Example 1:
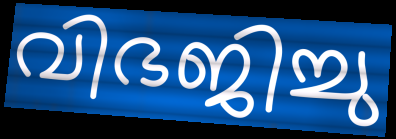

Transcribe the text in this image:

വിഭജിച്ചു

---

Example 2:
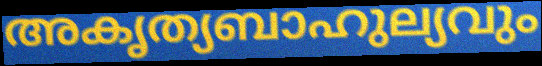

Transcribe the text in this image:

അകൃത്യബാഹുല്യവും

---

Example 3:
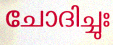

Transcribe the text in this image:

ചോദിച്ചുഃ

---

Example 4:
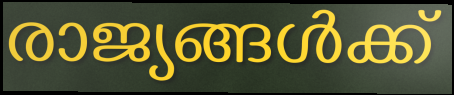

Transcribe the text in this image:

രാജ്യങ്ങൾക്ക്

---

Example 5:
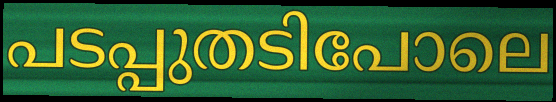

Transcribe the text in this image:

പടപ്പുതടിപോലെ